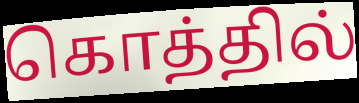
கொத்தில்